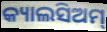
କ୍ୟାଲସିଅମ୍